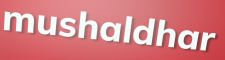
mushaldhar